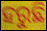
ହରୁଛି